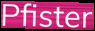
Pfister